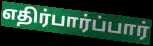
எதிர்பார்ப்பார்